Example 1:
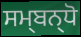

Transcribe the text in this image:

ਸਮ੍ਬਨ੍ਧੋ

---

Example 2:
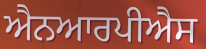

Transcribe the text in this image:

ਐਨਆਰਪੀਐਸ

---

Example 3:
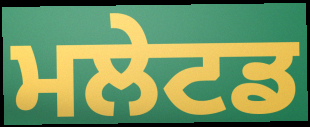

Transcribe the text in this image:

ਮਲੇਟਡ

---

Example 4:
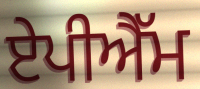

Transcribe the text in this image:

ਏਪੀਐੱਮ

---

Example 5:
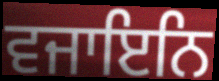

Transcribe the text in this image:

ਵਜਾਇਨਿ